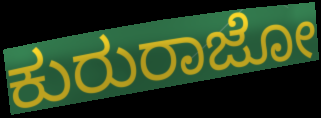
ಕುರುರಾಜೋ